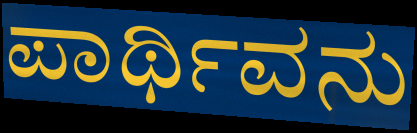
ಪಾರ್ಥಿವನು